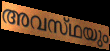
അവസ്‌ഥയും